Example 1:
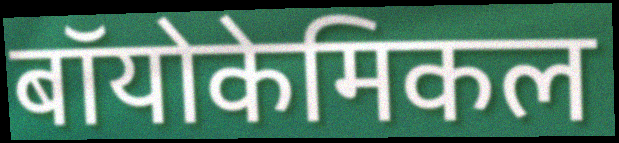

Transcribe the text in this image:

बॉयोकेमिकल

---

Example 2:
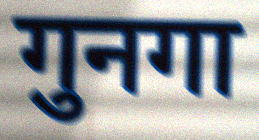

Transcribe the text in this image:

गुनगा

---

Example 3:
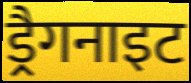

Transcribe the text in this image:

ड्रैगनाइट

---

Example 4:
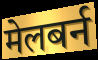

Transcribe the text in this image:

मेलबर्न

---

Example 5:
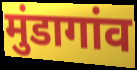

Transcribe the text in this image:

मुंडागांव